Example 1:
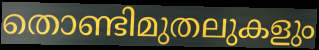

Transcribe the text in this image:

തൊണ്ടിമുതലുകളും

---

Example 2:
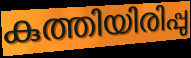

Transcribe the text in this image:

കുത്തിയിരിപ്പു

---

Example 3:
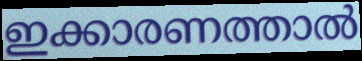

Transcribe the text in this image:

ഇക്കാരണത്താൽ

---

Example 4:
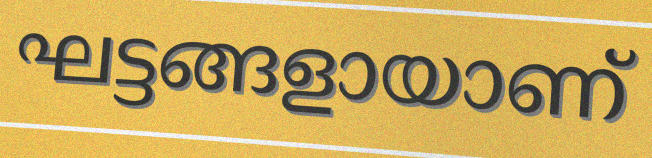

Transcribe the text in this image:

ഘട്ടങ്ങളായാണ്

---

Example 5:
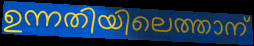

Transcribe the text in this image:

ഉന്നതിയിലെത്താന്